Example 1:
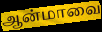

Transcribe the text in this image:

ஆன்மாவை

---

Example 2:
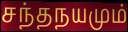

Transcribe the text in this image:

சந்தநயமும்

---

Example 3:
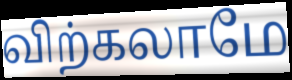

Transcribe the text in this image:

விற்கலாமே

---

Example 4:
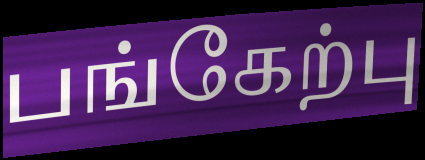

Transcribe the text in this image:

பங்கேற்பு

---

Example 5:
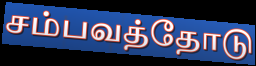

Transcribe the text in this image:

சம்பவத்தோடு